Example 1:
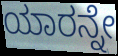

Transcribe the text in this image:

ಯಾರನ್ನೇ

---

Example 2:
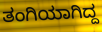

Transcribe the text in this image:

ತಂಗಿಯಾಗಿದ್ದ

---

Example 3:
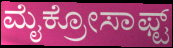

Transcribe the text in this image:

ಮೈಕ್ರೋಸಾಫ್ಟ್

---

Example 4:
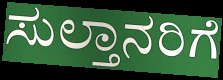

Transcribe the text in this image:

ಸುಲ್ತಾನರಿಗೆ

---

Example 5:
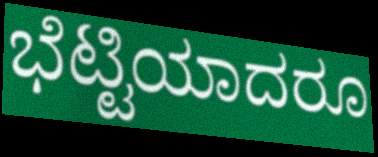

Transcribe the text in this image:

ಭೆಟ್ಟಿಯಾದರೂ